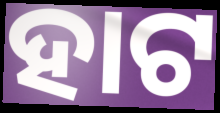
ହାଟ